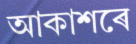
আকাশৰে